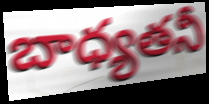
బాధ్యతనీ